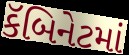
કૅબિનેટમાં